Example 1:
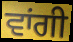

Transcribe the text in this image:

ਵਾਂਗੀ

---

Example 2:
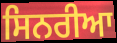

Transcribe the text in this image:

ਸਿਨਰੀਆ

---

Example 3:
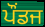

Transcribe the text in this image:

ਪੌਂਡਜ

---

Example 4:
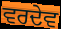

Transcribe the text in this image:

ਵਰਦੇਵ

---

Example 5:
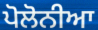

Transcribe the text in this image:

ਪੋਲੋਨੀਆ